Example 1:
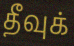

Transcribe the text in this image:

தீவுக்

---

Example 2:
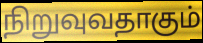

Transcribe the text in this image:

நிறுவுவதாகும்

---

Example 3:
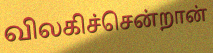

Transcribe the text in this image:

விலகிச்சென்றான்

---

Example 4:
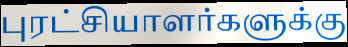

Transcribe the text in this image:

புரட்சியாளர்களுக்கு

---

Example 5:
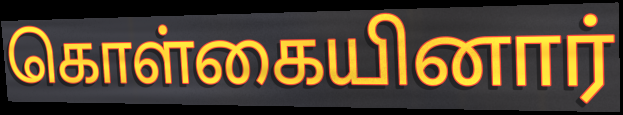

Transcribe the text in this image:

கொள்கையினார்